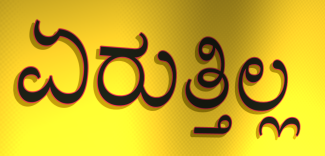
ಏರುತ್ತಿಲ್ಲ